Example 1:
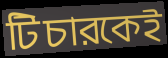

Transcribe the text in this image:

টিচারকেই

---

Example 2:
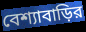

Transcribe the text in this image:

বেশ্যাবাড়ির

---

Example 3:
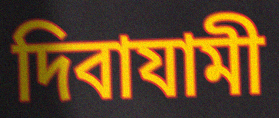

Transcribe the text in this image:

দিবাযামী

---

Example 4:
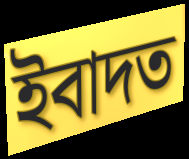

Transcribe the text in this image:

ইবাদত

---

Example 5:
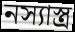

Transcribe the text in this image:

নস্যাস্ত্র